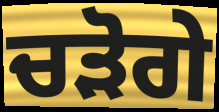
ਚੜੋਗੇ